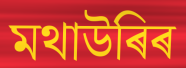
মথাউৰিৰ